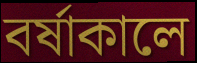
বর্ষাকালে